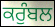
ਕਰੁੰਬਲ